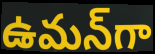
ఉమన్‌గా